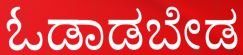
ಓಡಾಡಬೇಡ